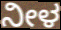
ನೀಳ